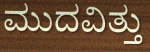
ಮುದವಿತ್ತು